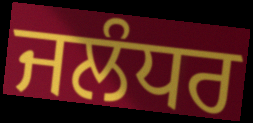
ਜਲੰਧਰ